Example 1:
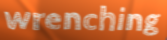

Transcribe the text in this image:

wrenching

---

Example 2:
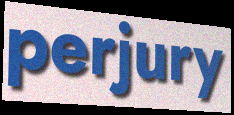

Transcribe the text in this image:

perjury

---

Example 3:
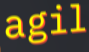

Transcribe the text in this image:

agil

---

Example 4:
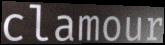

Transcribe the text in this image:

clamour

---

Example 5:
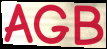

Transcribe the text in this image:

AGB